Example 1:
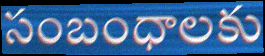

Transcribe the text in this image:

సంబంధాలకు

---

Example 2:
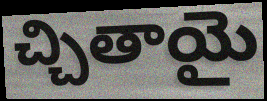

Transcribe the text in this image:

చ్చితాయై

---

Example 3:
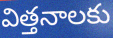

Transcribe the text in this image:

విత్తనాలకు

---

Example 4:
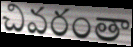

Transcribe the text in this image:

చివరంతా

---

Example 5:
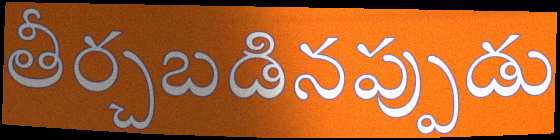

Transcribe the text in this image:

తీర్చబడినప్పుడు